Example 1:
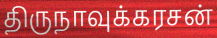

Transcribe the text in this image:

திருநாவுக்கரசன்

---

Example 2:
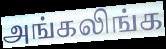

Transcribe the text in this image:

அங்கலிங்க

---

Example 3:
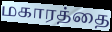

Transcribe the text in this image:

மகாரத்தை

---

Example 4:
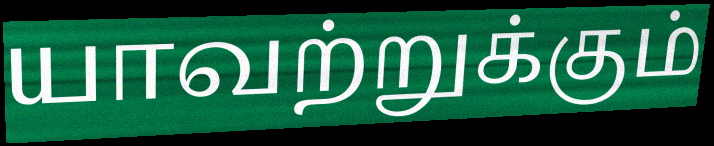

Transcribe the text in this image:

யாவற்றுக்கும்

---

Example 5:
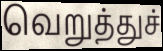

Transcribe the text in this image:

வெறுத்துச்